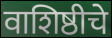
वाशिष्ठीचे